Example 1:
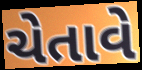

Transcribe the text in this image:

ચેતાવે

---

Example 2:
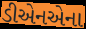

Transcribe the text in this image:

ડીએનએના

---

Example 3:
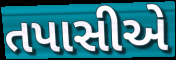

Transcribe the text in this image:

તપાસીએ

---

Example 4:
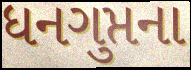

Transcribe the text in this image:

ધનગુપ્તના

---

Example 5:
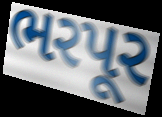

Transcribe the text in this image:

ભરપૂર